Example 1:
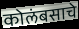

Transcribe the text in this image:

कोलंबसाचे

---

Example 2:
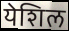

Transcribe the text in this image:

येशिल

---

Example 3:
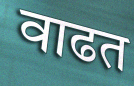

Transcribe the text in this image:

वाढत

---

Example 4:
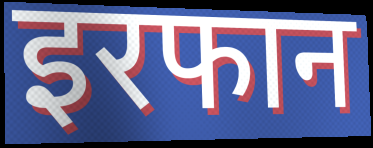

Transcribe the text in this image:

इरफान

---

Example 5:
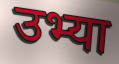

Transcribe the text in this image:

उभ्या